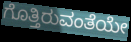
ಗೊತ್ತಿರುವಂತೆಯೇ